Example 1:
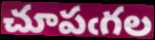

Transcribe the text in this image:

చూపఁగల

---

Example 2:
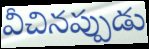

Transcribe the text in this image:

వీచినప్పుడు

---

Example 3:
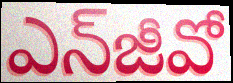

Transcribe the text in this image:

ఎన్‌జీవో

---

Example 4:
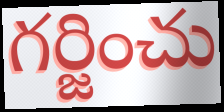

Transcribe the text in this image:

గర్జించు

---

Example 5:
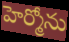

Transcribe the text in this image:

హెర్మోను